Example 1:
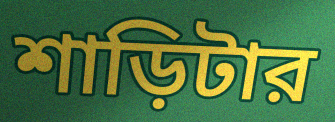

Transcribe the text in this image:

শাড়িটার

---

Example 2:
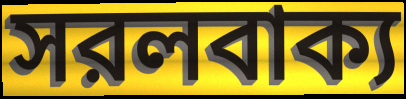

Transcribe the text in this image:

সরলবাক্য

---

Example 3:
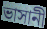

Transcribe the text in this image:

ভাসানী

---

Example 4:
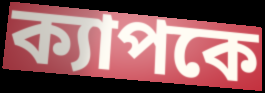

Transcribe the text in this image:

ক্যাপকে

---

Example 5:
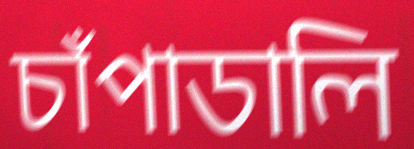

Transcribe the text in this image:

চাঁপাডালি